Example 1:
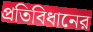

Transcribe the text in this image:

প্রতিবিধানের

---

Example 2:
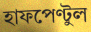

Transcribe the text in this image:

হাফপেণ্টুল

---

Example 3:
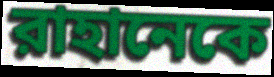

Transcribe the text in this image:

রাহানেকে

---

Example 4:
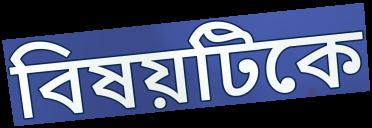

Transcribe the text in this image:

বিষয়টিকে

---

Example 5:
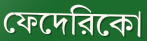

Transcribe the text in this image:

ফেদেরিকো